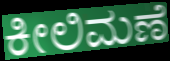
ಕೀಲಿಮಣೆ